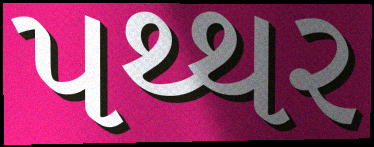
પથ્થર